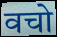
वचो